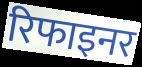
रिफाइनर